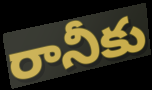
రానీకు